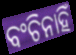
ବଂଚିନାହିଁ